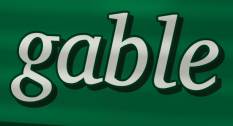
gable